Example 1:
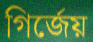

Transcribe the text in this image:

গির্জেয়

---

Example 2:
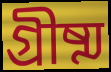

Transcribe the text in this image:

গ্রীষ্ম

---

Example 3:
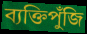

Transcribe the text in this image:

ব্যক্তিপুঁজি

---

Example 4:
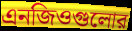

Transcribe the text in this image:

এনজিওগুলোর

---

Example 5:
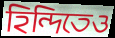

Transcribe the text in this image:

হিন্দিতেও